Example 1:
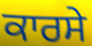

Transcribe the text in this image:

ਕਾਰਸੇ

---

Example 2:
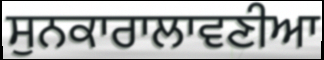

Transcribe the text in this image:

ਸੁਨਕਾਰਾਲਾਵਣੀਆ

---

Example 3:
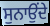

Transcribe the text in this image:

ਸੁਨਾਉਂਦੇ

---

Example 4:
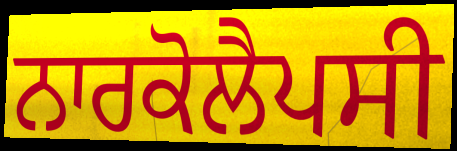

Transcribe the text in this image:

ਨਾਰਕੋਲੈਪਸੀ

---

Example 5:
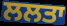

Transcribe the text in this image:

ਲਲਤਾ